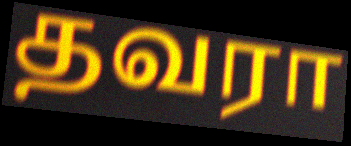
தவரா